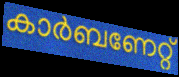
കാർബണേറ്റ്